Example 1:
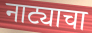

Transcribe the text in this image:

नाट्याचा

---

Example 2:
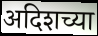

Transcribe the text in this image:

अदिशच्या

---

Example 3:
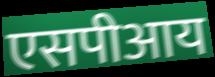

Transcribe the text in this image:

एसपीआय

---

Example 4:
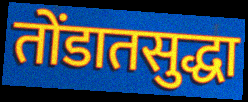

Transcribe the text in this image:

तोंडातसुद्धा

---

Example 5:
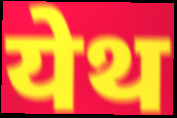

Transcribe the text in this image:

येथ